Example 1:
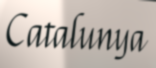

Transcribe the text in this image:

Catalunya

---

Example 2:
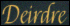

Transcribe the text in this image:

Deirdre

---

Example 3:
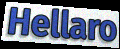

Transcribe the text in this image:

Hellaro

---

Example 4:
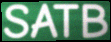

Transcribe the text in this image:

SATB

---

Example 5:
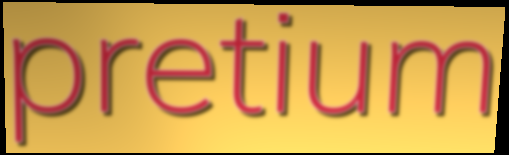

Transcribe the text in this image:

pretium